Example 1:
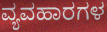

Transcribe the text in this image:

ವ್ಯವಹಾರಗಳ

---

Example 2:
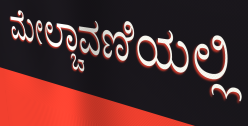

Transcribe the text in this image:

ಮೇಲ್ಚಾವಣಿಯಲ್ಲಿ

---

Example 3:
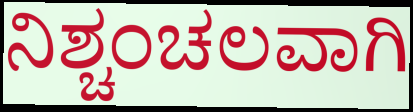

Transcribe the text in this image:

ನಿಶ್ಚಂಚಲವಾಗಿ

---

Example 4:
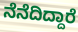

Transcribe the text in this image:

ನೆನೆದಿದ್ದಾರೆ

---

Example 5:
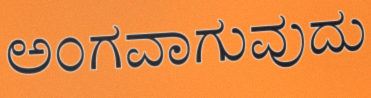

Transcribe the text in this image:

ಅಂಗವಾಗುವುದು